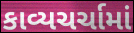
કાવ્યચર્ચામાં